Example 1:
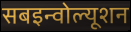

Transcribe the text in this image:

सबइन्वोल्यूशन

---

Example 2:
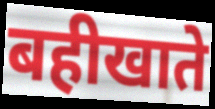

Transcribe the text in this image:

बहीखाते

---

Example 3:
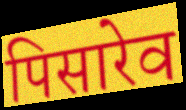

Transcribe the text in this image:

पिसारेव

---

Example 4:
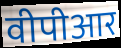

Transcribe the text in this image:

वीपीआर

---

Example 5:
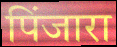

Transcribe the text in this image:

पिंजारा